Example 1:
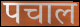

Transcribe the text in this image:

पचाल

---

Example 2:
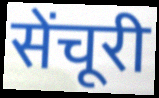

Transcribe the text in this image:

सेंचूरी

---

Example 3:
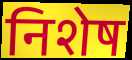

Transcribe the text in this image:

निशेष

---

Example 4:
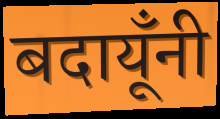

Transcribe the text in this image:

बदायूँनी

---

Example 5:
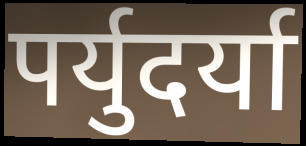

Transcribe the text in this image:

पर्युदर्या